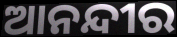
ଆନନ୍ଦୀର